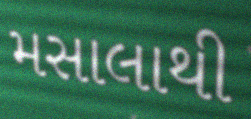
મસાલાથી